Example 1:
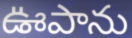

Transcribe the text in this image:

ఊపాను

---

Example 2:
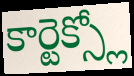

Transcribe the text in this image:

కార్టెక్స్లో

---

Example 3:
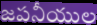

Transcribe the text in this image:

జపనీయుల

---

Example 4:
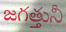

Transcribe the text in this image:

జగత్తునీ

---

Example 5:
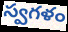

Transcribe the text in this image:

స్వగళం